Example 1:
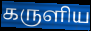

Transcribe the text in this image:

கருளிய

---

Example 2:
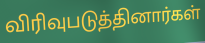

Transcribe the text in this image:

விரிவுபடுத்தினார்கள்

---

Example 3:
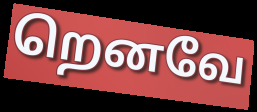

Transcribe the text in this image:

றெனவே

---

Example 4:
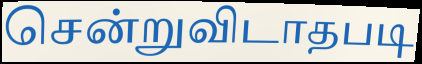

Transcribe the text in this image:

சென்றுவிடாதபடி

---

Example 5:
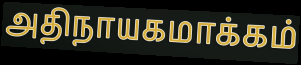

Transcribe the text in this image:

அதிநாயகமாக்கம்